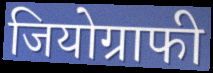
जियोग्राफी